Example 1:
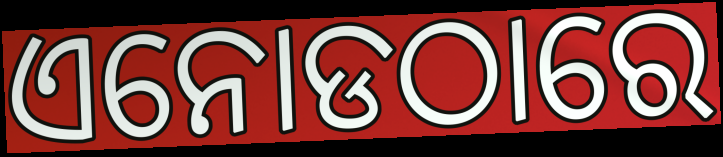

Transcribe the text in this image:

ଏନୋଡଠାରେ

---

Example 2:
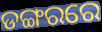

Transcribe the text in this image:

ଡଙ୍ଗରରେ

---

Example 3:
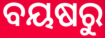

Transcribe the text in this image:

ବୟଷରୁ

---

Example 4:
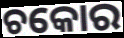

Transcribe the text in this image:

ଚକୋର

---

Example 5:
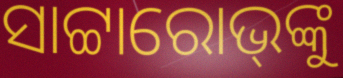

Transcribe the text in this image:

ସାଟ୍ଟାରୋଭ୍‌ଙ୍କୁ